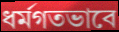
ধর্মগতভাবে